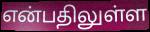
என்பதிலுள்ள